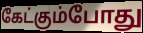
கேட்கும்போது